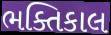
ભક્તિકાલ